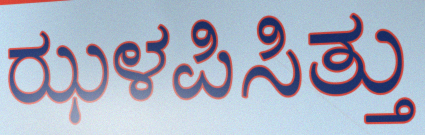
ಝಳಪಿಸಿತ್ತು